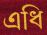
এধি